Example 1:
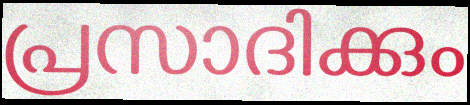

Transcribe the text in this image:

പ്രസാദിക്കും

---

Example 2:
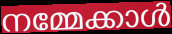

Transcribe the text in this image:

നമ്മേക്കാൾ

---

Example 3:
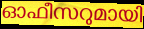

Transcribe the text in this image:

ഓഫീസറുമായി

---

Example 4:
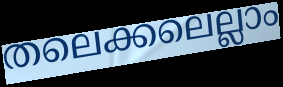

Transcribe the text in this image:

തലെക്കലെല്ലാം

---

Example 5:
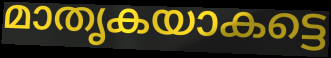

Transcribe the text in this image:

മാതൃകയാകട്ടെ